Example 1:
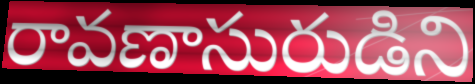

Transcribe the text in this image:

రావణాసురుడిని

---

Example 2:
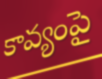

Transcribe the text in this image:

కావ్యంపై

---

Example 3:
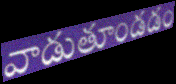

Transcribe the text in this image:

వాడుతూండడం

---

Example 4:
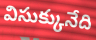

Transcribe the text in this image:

విసుక్కునేది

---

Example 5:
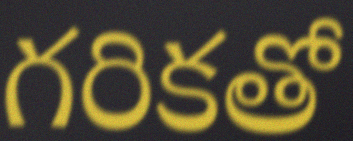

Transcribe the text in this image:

గరికతో